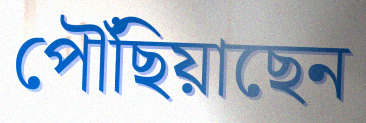
পৌঁছিয়াছেন